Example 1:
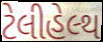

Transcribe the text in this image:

ટેલીહેલ્થ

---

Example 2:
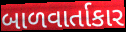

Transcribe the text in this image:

બાળવાર્તાકાર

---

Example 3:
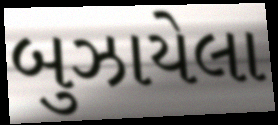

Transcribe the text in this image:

બુઝાયેલા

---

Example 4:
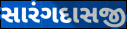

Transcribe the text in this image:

સારંગદાસજી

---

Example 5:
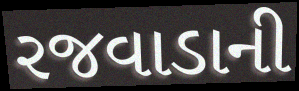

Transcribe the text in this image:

રજવાડાની